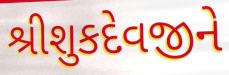
શ્રીશુકદેવજીને